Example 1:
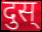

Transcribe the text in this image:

दुस्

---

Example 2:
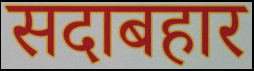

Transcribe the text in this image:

सदाबहार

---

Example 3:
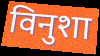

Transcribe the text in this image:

विनुशा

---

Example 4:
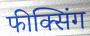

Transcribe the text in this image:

फीक्सिंग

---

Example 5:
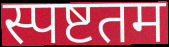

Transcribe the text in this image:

स्पष्टतम